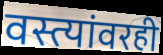
वस्त्यांवरही